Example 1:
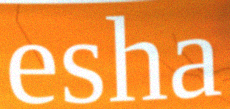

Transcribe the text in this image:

esha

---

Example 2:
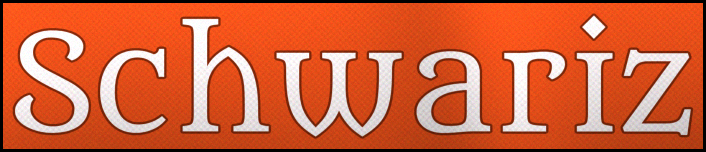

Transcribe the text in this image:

Schwariz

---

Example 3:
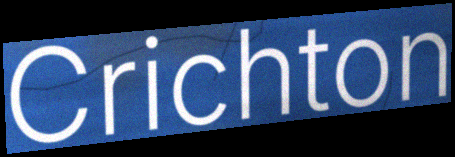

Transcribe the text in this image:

Crichton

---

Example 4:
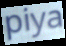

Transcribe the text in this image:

piya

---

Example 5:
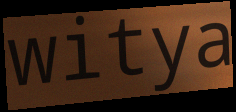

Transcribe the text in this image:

witya